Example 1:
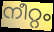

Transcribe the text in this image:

നീറ്റം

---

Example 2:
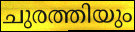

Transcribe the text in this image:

ചുരത്തിയും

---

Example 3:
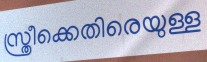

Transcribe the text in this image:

സ്ത്രീക്കെതിരെയുള്ള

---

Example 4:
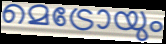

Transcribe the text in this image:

മെട്രോയും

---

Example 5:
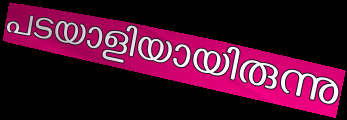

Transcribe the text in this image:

പടയാളിയായിരുന്നു